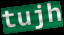
tujh